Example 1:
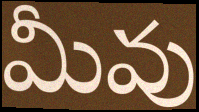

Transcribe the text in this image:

మీవు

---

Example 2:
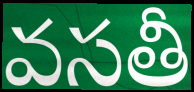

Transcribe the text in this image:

వసతీ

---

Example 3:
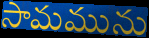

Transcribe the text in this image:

సామమును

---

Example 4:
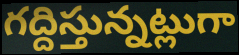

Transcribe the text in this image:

గద్దిస్తున్నట్లుగా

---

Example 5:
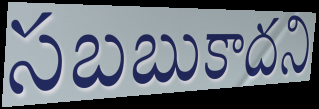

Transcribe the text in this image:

సబబుకాదని